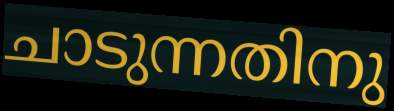
ചാടുന്നതിനു